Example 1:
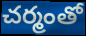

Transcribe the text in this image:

చర్మంతో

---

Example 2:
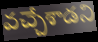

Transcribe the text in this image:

వచ్చేశాడని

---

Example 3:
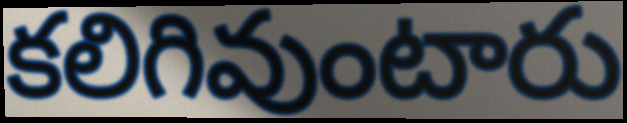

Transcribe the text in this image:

కలిగివుంటారు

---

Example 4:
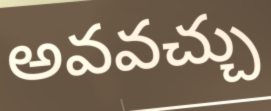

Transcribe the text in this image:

అవవచ్చు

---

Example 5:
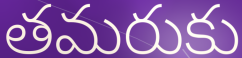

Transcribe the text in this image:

తమరుకు